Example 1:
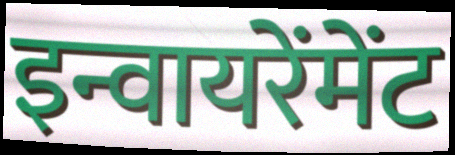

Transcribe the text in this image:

इन्वायरेंमेंट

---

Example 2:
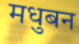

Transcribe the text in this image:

मधुबन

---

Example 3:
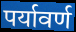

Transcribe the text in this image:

पर्यावर्ण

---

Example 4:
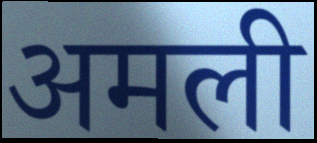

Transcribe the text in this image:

अमली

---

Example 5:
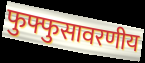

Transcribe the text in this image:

फुफ्फुसावरणीय